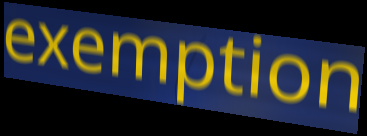
exemption